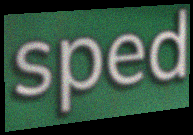
sped